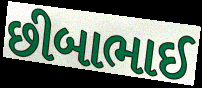
છીબાભાઈ